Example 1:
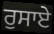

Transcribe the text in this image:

ਰੁਸਾਏ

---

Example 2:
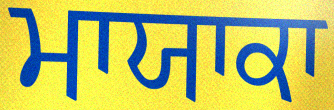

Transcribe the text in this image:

ਮਾਯਾਕਾ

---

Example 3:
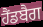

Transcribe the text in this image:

ਹੈਂਡਬੈਗ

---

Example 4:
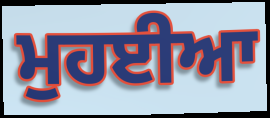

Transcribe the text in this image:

ਮੁਹਈਆ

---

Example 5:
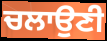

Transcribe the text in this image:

ਚਲਾਉਣੀ